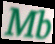
Mb